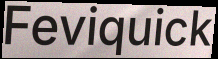
Feviquick